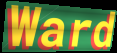
Ward